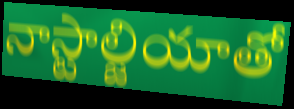
నాస్టాల్జియాతో